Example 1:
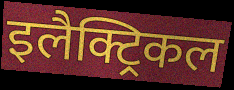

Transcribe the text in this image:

इलैक्ट्रिकल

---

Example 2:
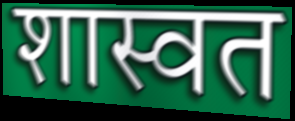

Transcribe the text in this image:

शास्वत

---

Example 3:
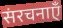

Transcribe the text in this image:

संरचनाएँ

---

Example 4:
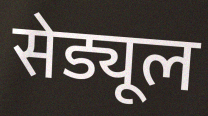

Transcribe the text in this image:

सेड्यूल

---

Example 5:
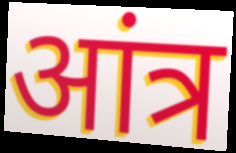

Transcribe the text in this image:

आंत्र